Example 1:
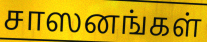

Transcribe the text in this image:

சாஸனங்கள்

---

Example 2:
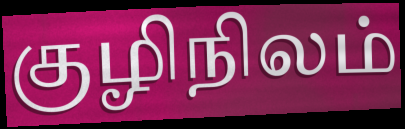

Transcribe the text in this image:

குழிநிலம்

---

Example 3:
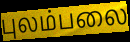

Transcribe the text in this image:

புலம்பலை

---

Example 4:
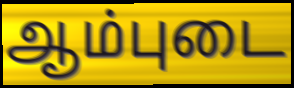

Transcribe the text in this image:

ஆம்புடை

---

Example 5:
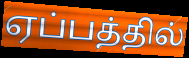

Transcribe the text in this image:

ஏப்பத்தில்